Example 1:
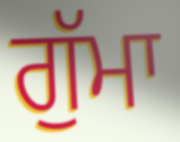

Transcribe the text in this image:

ਗੁੱਮਾ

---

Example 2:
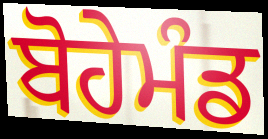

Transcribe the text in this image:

ਬੋਹੇਮੰਡ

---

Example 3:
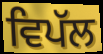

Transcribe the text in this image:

ਵਿਪੱਲ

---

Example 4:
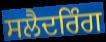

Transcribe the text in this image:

ਸਲੈਦਰਿੰਗ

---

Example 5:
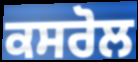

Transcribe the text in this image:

ਕਸਰੋਲ